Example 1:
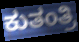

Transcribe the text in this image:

ಕುತಂತ್ರಿ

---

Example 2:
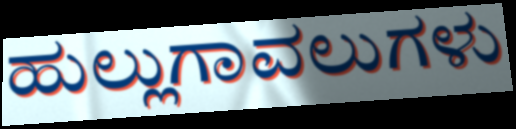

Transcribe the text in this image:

ಹುಲ್ಲುಗಾವಲುಗಳು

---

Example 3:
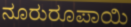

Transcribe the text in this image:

ನೂರುರೂಪಾಯಿ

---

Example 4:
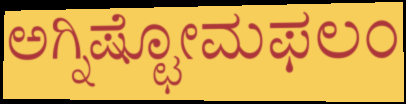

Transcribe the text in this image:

ಅಗ್ನಿಷ್ಟೋಮಫಲಂ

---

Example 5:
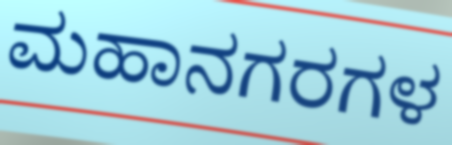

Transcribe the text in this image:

ಮಹಾನಗರಗಳ